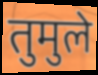
तुमुले